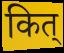
कित्